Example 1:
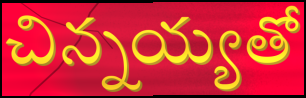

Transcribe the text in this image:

చిన్నయ్యతో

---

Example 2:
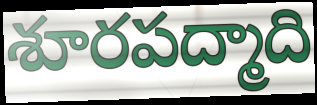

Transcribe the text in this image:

శూరపద్మాది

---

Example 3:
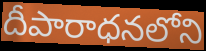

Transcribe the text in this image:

దీపారాధనలోని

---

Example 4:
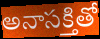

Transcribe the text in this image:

అనాసక్తితో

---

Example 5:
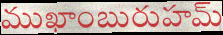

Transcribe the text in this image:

ముఖాంబురుహమ్